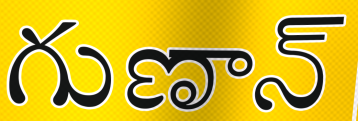
గుణాన్